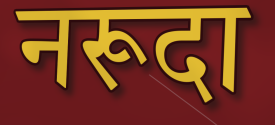
नरूदा